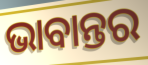
ଭାବାନ୍ତର